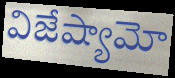
విజేష్యామో